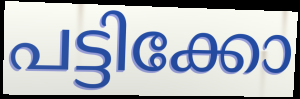
പട്ടിക്കോ